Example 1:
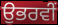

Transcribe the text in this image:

ਉਭਰਵੀਂ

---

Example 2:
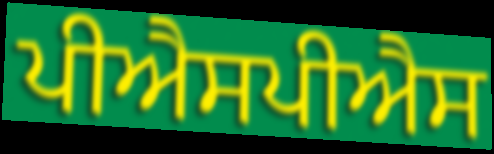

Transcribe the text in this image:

ਪੀਐਸਪੀਐਸ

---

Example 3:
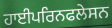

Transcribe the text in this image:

ਹਾਈਪਰਿਨਫਲੇਸਨ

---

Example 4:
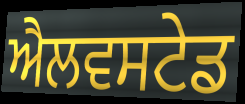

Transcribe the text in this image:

ਐਲਵਸਟੇਡ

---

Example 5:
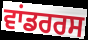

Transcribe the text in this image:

ਵਾਂਡਰਰਸ